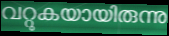
വറ്റുകയായിരുന്നു